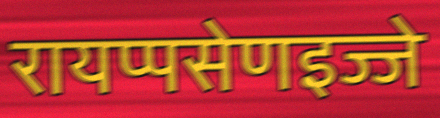
रायप्पसेणइज्जे